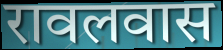
रावलवास